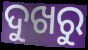
ଦୁଖରୁ